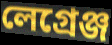
লেগ্রেঞ্জ